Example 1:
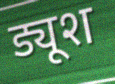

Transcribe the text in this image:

ड्यूश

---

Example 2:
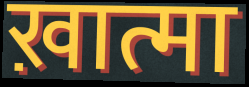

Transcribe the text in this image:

ख़ात्मा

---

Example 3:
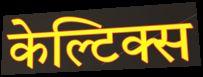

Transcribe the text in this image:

केल्टिक्स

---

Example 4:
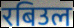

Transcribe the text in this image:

रबिउल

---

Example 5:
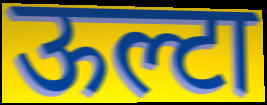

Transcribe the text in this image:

ऊल्टा